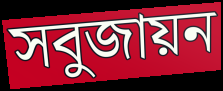
সবুজায়ন